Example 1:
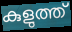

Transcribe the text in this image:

കുളുത്ത്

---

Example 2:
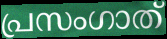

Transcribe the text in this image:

പ്രസംഗാത്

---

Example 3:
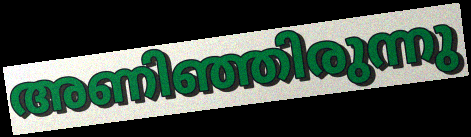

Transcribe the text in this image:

അണിഞ്ഞിരുന്നു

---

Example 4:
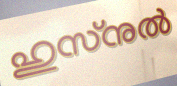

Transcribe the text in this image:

ഹുസ്നുൽ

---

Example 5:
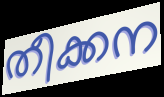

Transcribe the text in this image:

തീക്കന